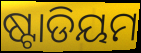
ଷ୍ଟାଡିୟମ